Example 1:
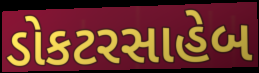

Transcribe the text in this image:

ડોકટરસાહેબ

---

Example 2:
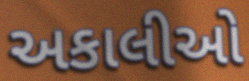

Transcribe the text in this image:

અકાલીઓ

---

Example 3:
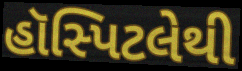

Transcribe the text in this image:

હૉસ્પિટલેથી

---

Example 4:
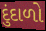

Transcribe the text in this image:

દુંદાળો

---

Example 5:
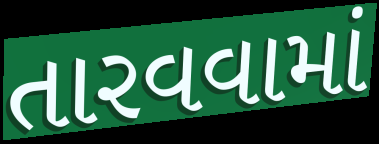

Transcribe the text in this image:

તારવવામાં